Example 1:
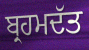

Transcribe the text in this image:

ਬ੍ਰਹਮਦੱਤ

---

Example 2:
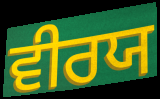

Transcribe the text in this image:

ਵੀਰਯ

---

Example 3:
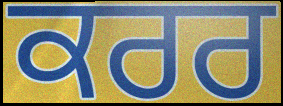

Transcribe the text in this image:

ਕਰਰ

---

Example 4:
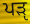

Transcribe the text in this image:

ਪੜੵ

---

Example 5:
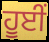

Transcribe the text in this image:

ਹੂਈਂ